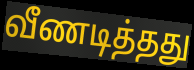
வீணடித்தது